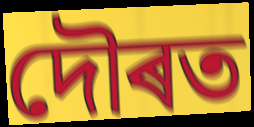
দৌৰত